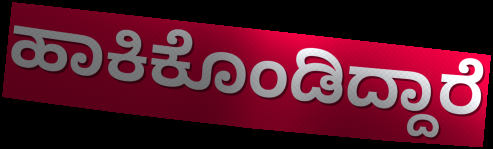
ಹಾಕಿಕೊಂಡಿದ್ದಾರೆ